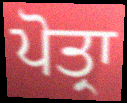
ਪੋਤ੍ਰਾ